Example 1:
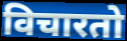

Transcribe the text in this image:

विचारतो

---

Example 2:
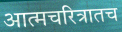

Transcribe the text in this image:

आत्मचरित्रातच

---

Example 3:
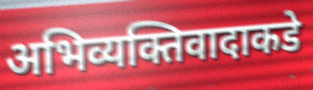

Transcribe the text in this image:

अभिव्यक्तिवादाकडे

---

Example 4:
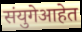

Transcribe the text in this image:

संयुगेआहेत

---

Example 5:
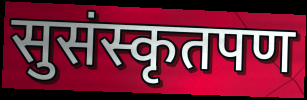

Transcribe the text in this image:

सुसंस्कृतपण